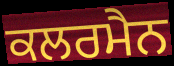
ਕਲਰਮੈਨ